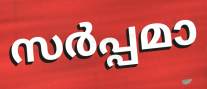
സർപ്പമാ